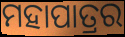
ମହାପାତ୍ରର